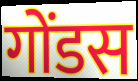
गोंडस